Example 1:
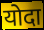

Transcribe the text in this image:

योदा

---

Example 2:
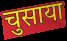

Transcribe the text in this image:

चुसाया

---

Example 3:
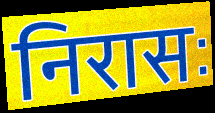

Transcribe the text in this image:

निरासः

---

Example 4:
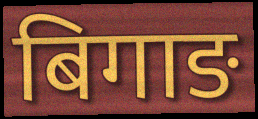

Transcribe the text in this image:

बिगाङ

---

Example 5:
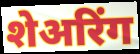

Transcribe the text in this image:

शेअरिंग